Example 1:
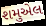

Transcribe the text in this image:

શમુએલ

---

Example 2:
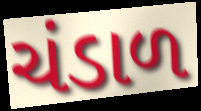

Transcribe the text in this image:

ચંડાળ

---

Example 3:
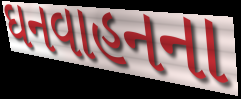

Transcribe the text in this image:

ઘનવાહનના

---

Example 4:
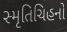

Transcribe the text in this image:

સ્મૃતિચિહનો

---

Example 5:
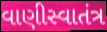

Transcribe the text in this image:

વાણીસ્વાતંત્ર